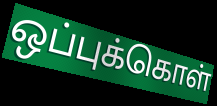
ஒப்புக்கொள்